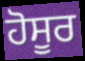
ਹੋਸੂਰ